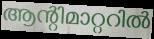
ആന്റിമാറ്ററിൽ